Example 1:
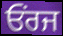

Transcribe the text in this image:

ਓਂਰਜ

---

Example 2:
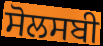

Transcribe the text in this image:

ਸੋਲਸਬੀ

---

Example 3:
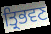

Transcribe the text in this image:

ਤ੍ਰਿਭਵਣ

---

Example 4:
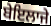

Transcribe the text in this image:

ਬੇਇਲਾਜੇ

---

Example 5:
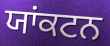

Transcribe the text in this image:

ਯਾਂਕਟਨ